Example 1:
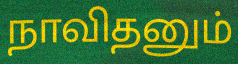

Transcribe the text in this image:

நாவிதனும்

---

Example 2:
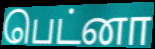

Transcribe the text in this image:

பெட்னா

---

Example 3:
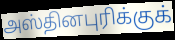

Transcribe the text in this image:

அஸ்தினபுரிக்குக்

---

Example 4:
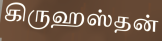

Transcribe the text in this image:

கிருஹஸ்தன்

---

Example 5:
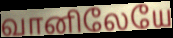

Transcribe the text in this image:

வானிலேயே